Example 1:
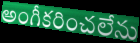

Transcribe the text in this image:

అంగీకరించలేను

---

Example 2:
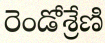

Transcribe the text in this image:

రెండోశ్రేణి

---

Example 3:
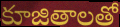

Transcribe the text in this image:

కూజితాలతో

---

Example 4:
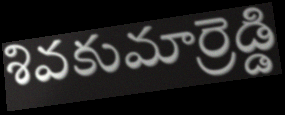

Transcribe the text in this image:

శివకుమార్రెడ్డి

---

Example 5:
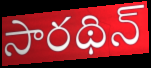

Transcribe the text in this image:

సారథిన్